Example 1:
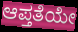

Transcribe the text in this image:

ಆಪ್ತತೆಯೇ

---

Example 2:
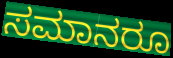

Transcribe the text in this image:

ಸಮಾನರೂ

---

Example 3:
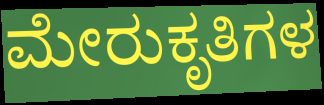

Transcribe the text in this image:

ಮೇರುಕೃತಿಗಳ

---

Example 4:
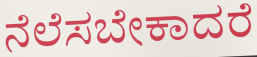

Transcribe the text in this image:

ನೆಲೆಸಬೇಕಾದರೆ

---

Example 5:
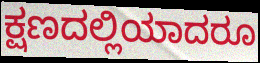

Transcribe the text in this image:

ಕ್ಷಣದಲ್ಲಿಯಾದರೂ